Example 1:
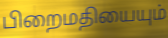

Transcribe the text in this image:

பிறைமதியையும்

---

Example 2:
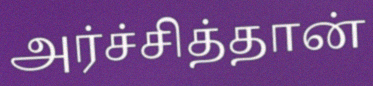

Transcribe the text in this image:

அர்ச்சித்தான்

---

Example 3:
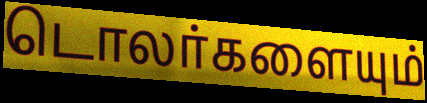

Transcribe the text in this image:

டொலர்களையும்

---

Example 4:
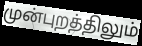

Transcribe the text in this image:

முன்புறத்திலும்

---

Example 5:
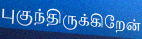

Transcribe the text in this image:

புகுந்திருக்கிறேன்